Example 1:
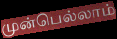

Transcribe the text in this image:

முன்பெல்லாம்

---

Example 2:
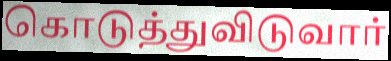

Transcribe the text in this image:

கொடுத்துவிடுவார்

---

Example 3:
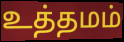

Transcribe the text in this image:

உத்தமம்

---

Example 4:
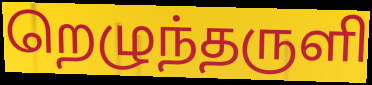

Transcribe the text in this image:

றெழுந்தருளி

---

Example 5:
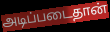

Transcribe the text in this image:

அடிப்படைதான்